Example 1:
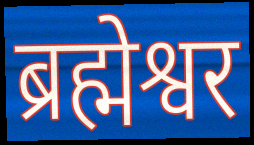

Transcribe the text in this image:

ब्रह्मेश्वर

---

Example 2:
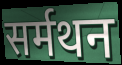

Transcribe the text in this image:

सर्मथन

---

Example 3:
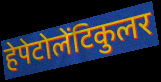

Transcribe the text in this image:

हेपेटोलेंटिकुलर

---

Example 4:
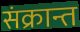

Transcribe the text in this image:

संक्रान्त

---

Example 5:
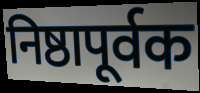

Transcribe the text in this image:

निष्ठापूर्वक